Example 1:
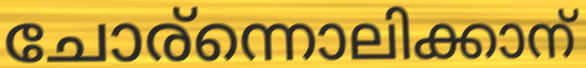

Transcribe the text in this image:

ചോര്ന്നൊലിക്കാന്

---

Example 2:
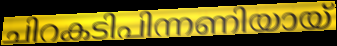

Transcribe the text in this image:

ചിറകടിപിന്നണിയായ്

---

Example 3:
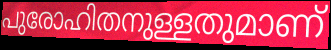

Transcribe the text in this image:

പുരോഹിതനുള്ളതുമാണ്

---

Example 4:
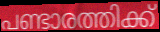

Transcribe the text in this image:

പണ്ടാരത്തിക്ക്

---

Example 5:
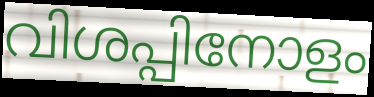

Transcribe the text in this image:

വിശപ്പിനോളം